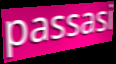
passasi